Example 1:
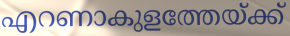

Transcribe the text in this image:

എറണാകുളത്തേയ്ക്ക്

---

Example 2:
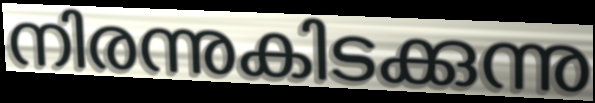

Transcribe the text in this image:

നിരന്നുകിടക്കുന്നു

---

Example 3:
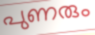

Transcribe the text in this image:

പുണരും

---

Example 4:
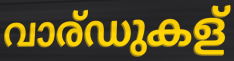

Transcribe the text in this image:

വാര്ഡുകള്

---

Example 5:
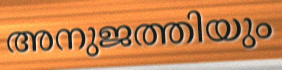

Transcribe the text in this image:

അനുജത്തിയും